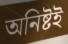
অনিষ্টই